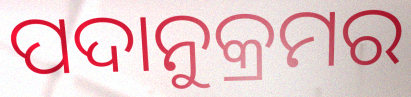
ପଦାନୁକ୍ରମର